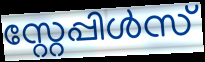
സ്റ്റേപ്പിൾസ്